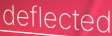
deflected